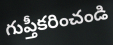
గుప్తీకరించండి